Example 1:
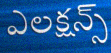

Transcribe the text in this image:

ఎలక్షన్స్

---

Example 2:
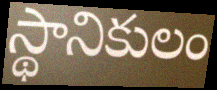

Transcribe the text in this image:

స్థానికులం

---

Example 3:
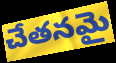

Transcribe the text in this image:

చేతనమై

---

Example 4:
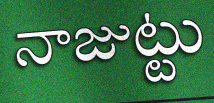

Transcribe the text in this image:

నాజుట్టు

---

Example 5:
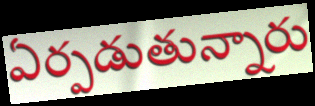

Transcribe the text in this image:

ఏర్పడుతున్నారు